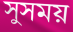
সুসময়